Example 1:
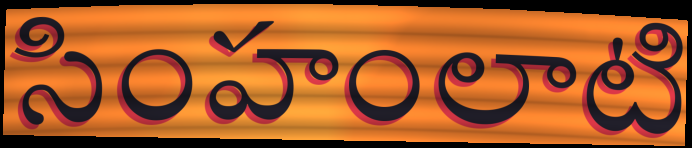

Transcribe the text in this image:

సింహంలాటి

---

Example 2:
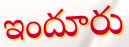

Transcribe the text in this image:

ఇందూరు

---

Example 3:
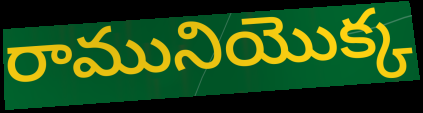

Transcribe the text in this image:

రామునియొక్క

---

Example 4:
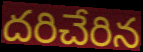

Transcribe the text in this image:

దరిచేరిన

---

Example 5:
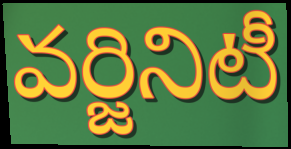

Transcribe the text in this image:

వర్జినిటీ